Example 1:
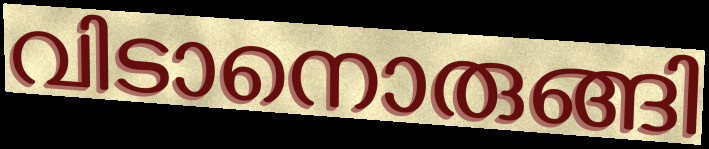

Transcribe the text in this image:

വിടാനൊരുങ്ങി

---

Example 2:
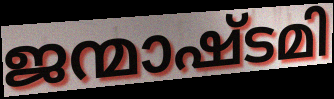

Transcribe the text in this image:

ജന്മാഷ്ടമി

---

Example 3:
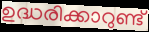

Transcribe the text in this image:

ഉദ്ധരിക്കാറുണ്ട്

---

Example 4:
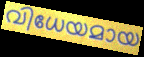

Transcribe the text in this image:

വിധേയമായ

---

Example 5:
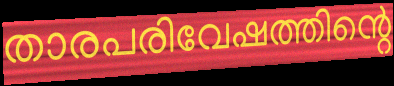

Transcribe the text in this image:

താരപരിവേഷത്തിന്റെ